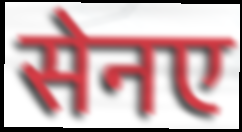
सेनए